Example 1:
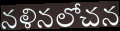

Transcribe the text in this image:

నళినలోచన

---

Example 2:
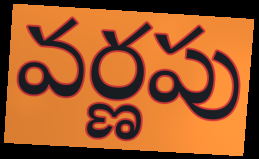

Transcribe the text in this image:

వర్ణపు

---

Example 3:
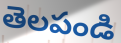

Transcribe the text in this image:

తెలపండి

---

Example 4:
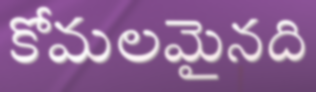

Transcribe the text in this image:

కోమలమైనది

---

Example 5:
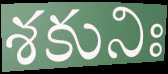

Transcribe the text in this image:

శకునిః